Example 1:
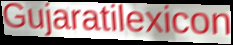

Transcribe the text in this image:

Gujaratilexicon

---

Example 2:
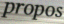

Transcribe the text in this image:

propos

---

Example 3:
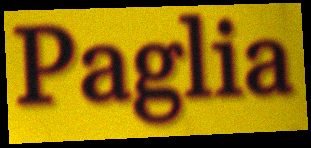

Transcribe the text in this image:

Paglia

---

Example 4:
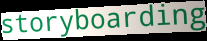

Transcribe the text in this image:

storyboarding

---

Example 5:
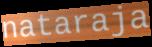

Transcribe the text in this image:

nataraja